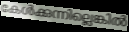
കേൾക്കുന്നില്ലെങ്കിൽ